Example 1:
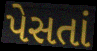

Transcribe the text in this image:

પેસતાં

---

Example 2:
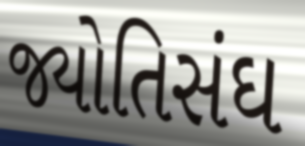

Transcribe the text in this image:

જ્યોતિસંઘ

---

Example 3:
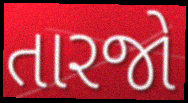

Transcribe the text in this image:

તારજો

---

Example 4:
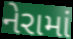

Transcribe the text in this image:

નેરામાં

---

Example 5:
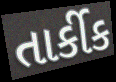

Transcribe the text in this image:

તાર્કીક